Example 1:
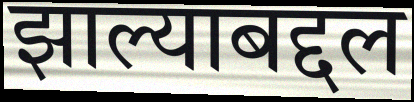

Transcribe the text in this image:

झाल्याबद्दल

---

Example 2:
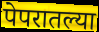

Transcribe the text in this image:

पेपरातल्या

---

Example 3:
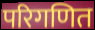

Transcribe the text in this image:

परिगणित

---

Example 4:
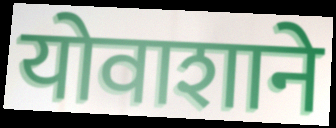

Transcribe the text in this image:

योवाशाने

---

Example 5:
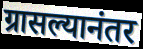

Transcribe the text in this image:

ग्रासल्यानंतर